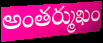
అంతర్ముఖం